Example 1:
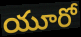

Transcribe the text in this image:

యూరో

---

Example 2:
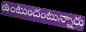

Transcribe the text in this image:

ఉంటుందంటున్నారు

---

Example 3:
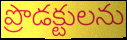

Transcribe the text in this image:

ప్రొడక్టులను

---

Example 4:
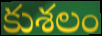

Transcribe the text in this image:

కుశలం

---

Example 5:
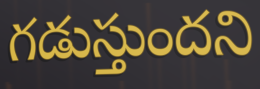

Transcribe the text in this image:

గడుస్తుందని